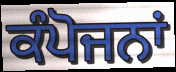
ਕੰਪੋਜਨਾਂ